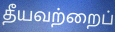
தீயவற்றைப்